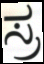
ಸ್ರ